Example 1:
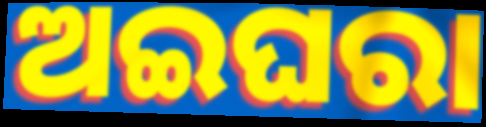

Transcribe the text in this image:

ଅଇଘରା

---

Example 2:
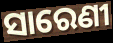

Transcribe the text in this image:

ସାରେଣୀ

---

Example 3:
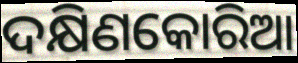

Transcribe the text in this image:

ଦକ୍ଷିଣକୋରିଆ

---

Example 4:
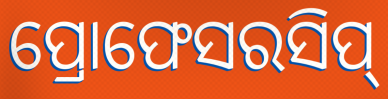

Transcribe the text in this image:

ପ୍ରୋଫେସରସିପ୍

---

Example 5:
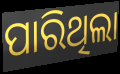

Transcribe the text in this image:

ପାରିଥିଲା